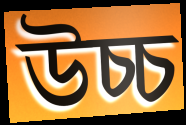
উচ্চ